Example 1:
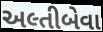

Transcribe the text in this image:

અલ્તીબેવા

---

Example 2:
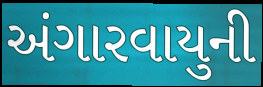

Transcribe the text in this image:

અંગારવાયુની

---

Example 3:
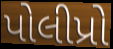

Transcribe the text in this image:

પોલીપ્રો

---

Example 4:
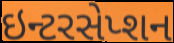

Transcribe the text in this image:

ઇન્ટરસેપ્શન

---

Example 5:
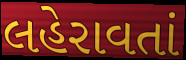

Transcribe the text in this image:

લહેરાવતાં